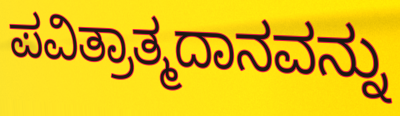
ಪವಿತ್ರಾತ್ಮದಾನವನ್ನು